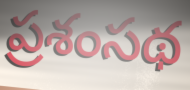
ప్రశంసథ